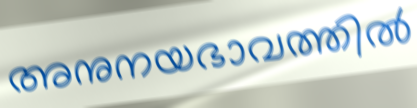
അനുനയഭാവത്തിൽ